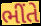
ભીંતે